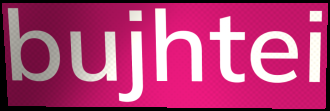
bujhtei